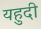
यहुदी